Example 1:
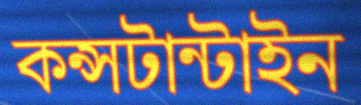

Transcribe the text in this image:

কন্সটান্টাইন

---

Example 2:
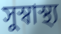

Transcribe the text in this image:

সুস্বাস্থ্য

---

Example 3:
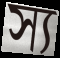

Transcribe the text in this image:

স্য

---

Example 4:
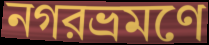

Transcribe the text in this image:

নগরভ্রমণে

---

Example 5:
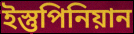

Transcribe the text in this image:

ইস্তুপিনিয়ান